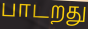
பாடறது